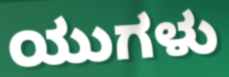
ಯುಗಳು